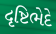
દૃષ્ટિભેદે